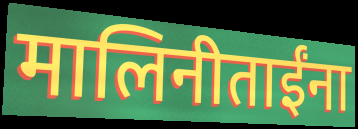
मालिनीताईंना